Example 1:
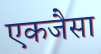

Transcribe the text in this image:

एकजैसा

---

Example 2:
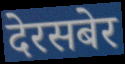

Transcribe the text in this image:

देरसबेर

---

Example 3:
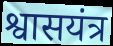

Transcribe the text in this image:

श्वासयंत्र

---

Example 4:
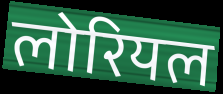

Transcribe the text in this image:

लोरियल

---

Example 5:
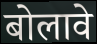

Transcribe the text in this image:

बोलावे